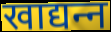
खाद्यन्न